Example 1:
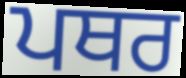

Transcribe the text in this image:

ਪਥਰ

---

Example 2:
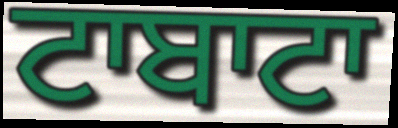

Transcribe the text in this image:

ਟਾਬਾਟਾ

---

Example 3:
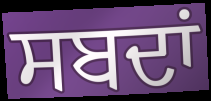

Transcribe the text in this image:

ਸਬਦਾਂ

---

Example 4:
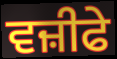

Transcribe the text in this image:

ਵਜ਼ੀਫੇ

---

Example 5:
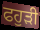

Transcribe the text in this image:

ਫਹੁੜੀ